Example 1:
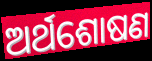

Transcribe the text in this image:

ଅର୍ଥଶୋଷଣ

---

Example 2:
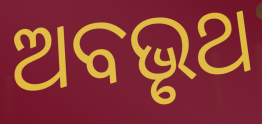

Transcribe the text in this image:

ଅବଭୃଥ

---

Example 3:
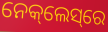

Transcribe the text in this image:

ନେକ୍‌ଲେସ୍‌ରେ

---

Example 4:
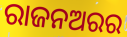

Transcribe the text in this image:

ରାଜନଅରର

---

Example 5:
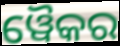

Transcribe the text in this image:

ୱୈକର